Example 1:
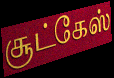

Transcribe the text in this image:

சூட்கேஸ்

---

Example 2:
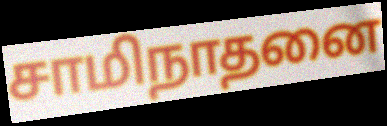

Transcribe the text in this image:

சாமிநாதனை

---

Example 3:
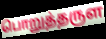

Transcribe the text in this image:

பொறுத்தருள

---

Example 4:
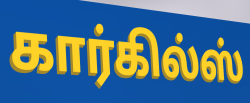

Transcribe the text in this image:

கார்கில்ஸ்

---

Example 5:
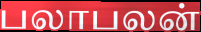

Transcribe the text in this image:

பலாபலன்